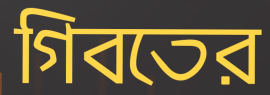
গিবতের